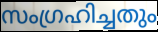
സംഗ്രഹിച്ചതും